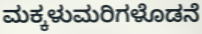
ಮಕ್ಕಳುಮರಿಗಳೊಡನೆ